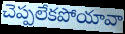
చెప్పలేకపోయావా